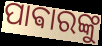
ପାଵାରଙ୍କୁ